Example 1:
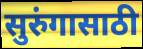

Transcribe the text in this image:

सुरुंगासाठी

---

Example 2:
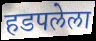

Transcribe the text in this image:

हडपलेला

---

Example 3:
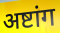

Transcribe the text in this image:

अष्टांग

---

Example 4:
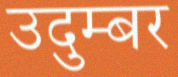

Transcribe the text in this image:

उदुम्बर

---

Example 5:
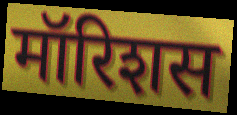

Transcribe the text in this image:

मॉरिशस